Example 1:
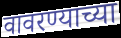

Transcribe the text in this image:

वावरण्याच्या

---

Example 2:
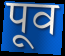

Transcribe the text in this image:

पूव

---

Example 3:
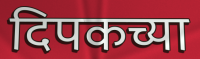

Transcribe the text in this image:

दिपकच्या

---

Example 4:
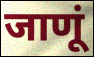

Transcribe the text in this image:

जाणूं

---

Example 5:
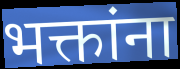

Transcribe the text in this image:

भक्तांना